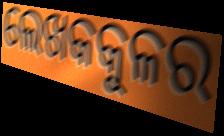
ଲେଖକକୁଳର